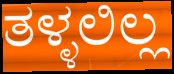
ತಳ್ಳಲಿಲ್ಲ